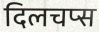
दिलचप्स